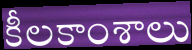
కీలకాంశాలు